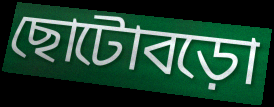
ছোটোবড়ো